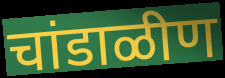
चांडाळीण